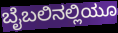
ಬೈಬಲಿನಲ್ಲಿಯೂ